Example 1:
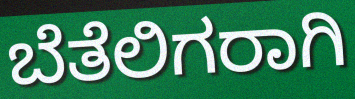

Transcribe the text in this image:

ಬೆತೆಲಿಗರಾಗಿ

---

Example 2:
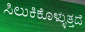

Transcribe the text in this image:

ಸಿಲುಕಿಕೊಳ್ಳುತ್ತದೆ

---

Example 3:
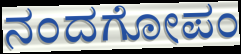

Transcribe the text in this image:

ನಂದಗೋಪಂ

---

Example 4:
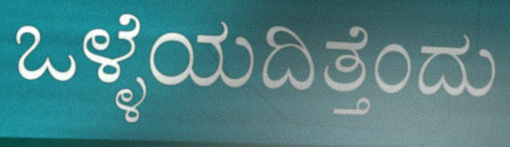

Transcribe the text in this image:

ಒಳ್ಳೆಯದಿತ್ತೆಂದು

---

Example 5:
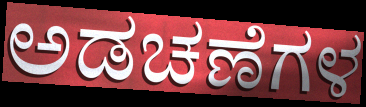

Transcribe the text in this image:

ಅಡಚಣೆಗಳ